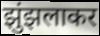
झुंझलाकर